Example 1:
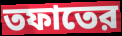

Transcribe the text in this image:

তফাতের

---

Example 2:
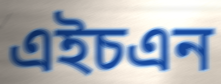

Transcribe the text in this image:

এইচএন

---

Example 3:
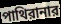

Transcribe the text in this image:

পাথিরানার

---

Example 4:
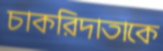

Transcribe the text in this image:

চাকরিদাতাকে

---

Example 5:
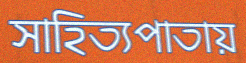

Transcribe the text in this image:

সাহিত্যপাতায়